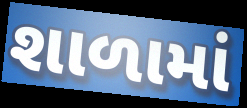
શાળામાં